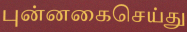
புன்னகைசெய்து